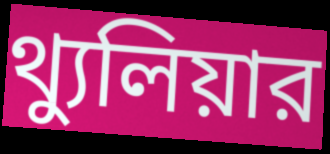
থ্যুলিয়ার